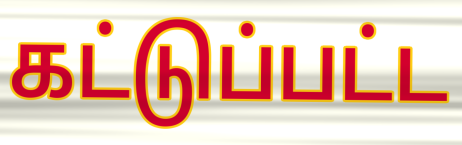
கட்டுப்பட்ட